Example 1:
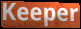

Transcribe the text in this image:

Keeper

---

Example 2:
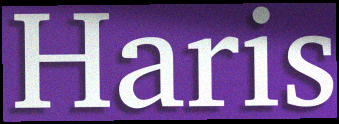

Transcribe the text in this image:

Haris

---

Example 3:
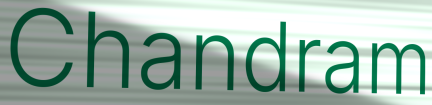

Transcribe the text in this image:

Chandram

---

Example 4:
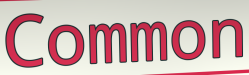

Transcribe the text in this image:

Common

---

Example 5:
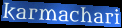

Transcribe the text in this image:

karmachari